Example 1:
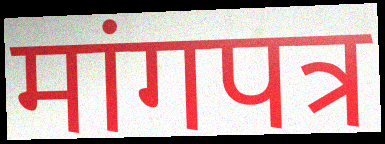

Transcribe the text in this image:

मांगपत्र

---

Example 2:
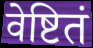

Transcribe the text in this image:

वेष्टितं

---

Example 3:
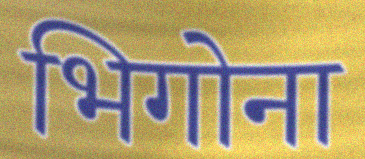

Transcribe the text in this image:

भिगोना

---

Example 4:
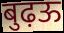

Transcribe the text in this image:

बुढ़ऊ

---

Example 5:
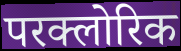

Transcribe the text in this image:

परक्लोरिक